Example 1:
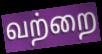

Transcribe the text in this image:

வற்றை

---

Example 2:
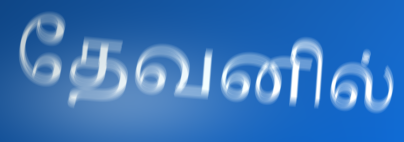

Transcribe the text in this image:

தேவனில்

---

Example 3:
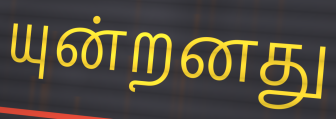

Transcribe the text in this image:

யுன்றனது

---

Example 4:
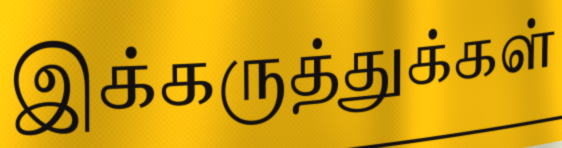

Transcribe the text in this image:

இக்கருத்துக்கள்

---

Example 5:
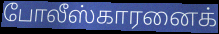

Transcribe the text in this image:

போலீஸ்காரனைக்